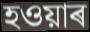
হওয়াৰ